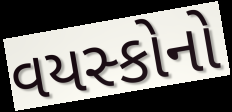
વયસ્કોનો